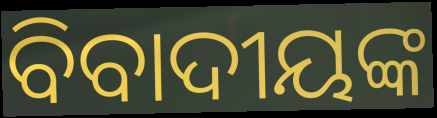
ବିବାଦୀୟଙ୍କ